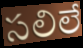
సలిలే